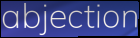
abjection